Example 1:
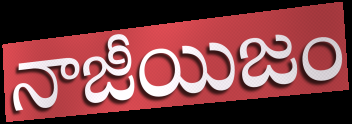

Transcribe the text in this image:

నాజీయిజం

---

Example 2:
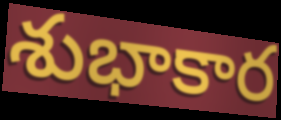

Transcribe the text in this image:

శుభాకార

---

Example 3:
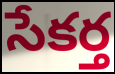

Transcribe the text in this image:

సేకర్త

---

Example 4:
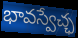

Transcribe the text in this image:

భావస్వేచ్ఛ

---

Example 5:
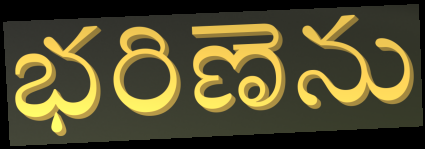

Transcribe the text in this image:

భరిణెను